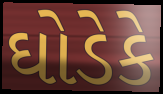
ઘોડેકે